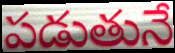
పడుతునే